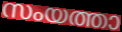
സംയത്താ